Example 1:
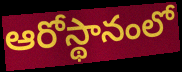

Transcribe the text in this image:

ఆరోస్థానంలో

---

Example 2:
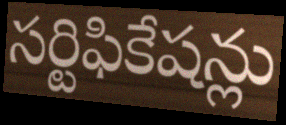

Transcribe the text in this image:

సర్టిఫికేషన్లు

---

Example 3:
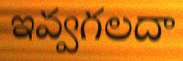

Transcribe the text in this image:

ఇవ్వగలదా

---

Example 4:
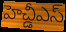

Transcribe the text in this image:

హెచ్డీఎస్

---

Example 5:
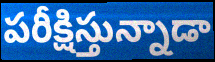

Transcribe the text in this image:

పరీక్షిస్తున్నాడా